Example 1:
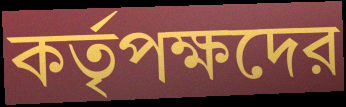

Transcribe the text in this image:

কর্তৃপক্ষদের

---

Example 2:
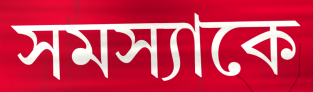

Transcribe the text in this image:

সমস্যাকে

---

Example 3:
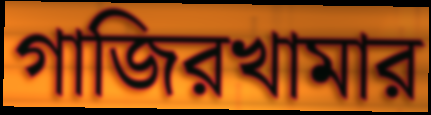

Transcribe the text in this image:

গাজিরখামার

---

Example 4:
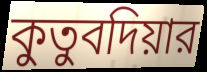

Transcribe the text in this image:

কুতুবদিয়ার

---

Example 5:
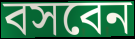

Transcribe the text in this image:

বসবেন